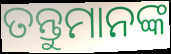
ତନ୍ତୁମାନଙ୍କ